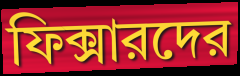
ফিক্সারদের